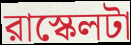
রাস্কেলটা